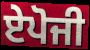
ਏਪੋਜੀ